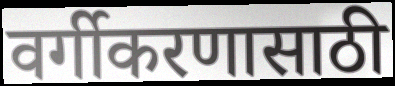
वर्गीकरणासाठी